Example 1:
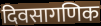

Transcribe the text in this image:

दिवसागणिक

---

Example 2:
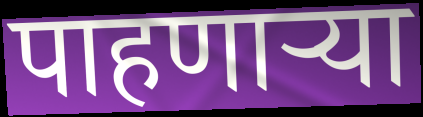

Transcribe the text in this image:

पाहणार्‍या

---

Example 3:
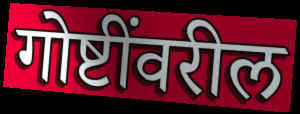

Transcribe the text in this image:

गोष्टींवरील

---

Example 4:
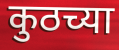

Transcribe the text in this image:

कुठच्या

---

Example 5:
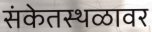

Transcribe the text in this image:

संकेतस्थळावर